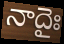
నాదైః